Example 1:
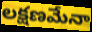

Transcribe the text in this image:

లక్షణమేనా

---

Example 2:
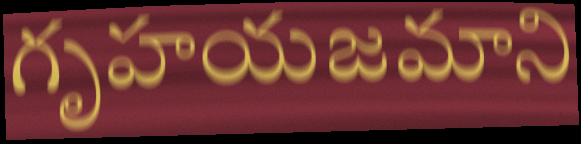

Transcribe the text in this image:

గృహయజమాని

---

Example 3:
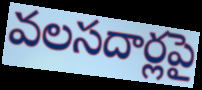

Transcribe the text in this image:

వలసదార్లపై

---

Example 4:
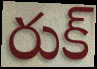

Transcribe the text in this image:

రుక్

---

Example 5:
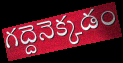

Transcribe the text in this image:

గద్దెనెక్కడం